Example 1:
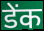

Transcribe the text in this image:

डेंक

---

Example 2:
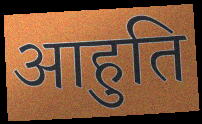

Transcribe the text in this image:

आहुति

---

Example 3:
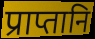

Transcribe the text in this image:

प्राप्तानि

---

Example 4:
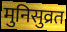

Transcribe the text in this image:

मुनिसुव्रत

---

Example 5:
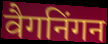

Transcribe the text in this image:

वैगनिंगन